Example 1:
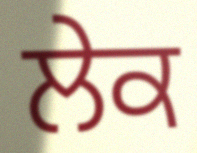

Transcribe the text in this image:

ਲੇਕ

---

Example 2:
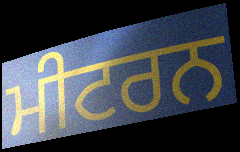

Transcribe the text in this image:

ਮੀਟਰਨ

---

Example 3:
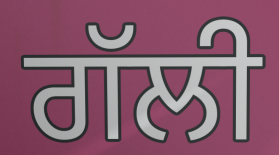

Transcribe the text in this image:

ਗੱਲੀ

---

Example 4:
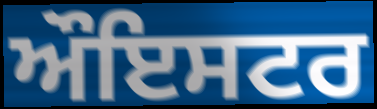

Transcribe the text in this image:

ਔਇਸਟਰ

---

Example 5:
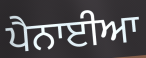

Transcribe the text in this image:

ਪੈਨਾਈਆ